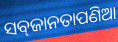
ସବ୍‌ଜାନତାପଣିଆ